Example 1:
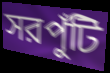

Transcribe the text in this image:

সরপুঁটি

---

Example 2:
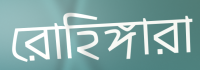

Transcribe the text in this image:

রোহিঙ্গারা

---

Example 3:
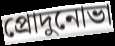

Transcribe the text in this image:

প্রোদুনোভা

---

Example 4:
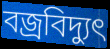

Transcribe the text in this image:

বজ্রবিদ্যুৎ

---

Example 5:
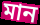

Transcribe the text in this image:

মান